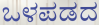
ಒಳಪಡದ